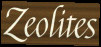
Zeolites